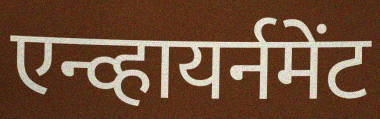
एन्व्हायर्नमेंट